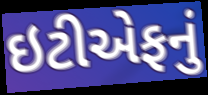
ઇટીએફનું